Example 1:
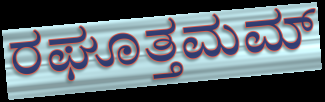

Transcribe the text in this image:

ರಘೂತ್ತಮಮ್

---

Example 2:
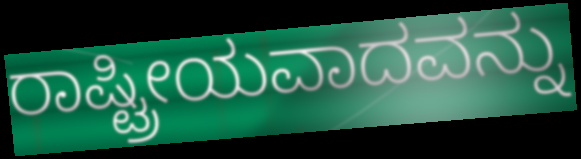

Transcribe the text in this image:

ರಾಷ್ಟ್ರೀಯವಾದವನ್ನು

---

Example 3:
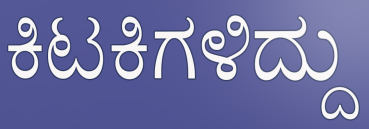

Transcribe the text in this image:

ಕಿಟಕಿಗಳಿದ್ದು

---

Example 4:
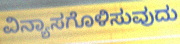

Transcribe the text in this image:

ವಿನ್ಯಾಸಗೊಳಿಸುವುದು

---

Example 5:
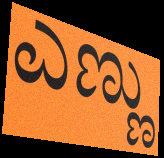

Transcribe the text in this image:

ಎಣ್ಣು